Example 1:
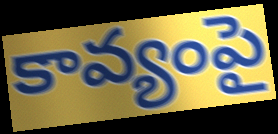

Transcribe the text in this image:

కావ్యంపై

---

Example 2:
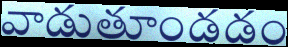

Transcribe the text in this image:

వాడుతూండడం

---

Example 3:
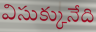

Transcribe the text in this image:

విసుక్కునేది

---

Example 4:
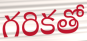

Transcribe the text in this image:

గరికతో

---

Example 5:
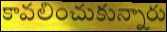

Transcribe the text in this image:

కావలించుకున్నారు